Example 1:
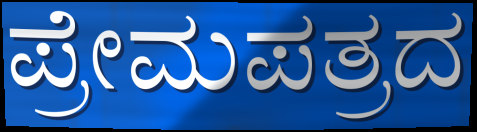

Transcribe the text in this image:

ಪ್ರೇಮಪತ್ರದ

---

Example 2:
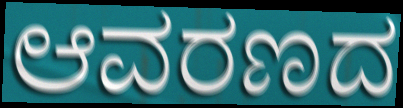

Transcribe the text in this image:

ಆವರಣದ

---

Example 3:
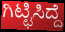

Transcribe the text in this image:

ಗಿಟ್ಟಿಸಿದ್ದೆ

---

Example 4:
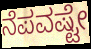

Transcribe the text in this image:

ನೆಪವಷ್ಟೇ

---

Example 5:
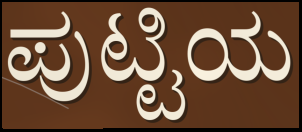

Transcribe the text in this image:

ಪುಟ್ಟಿಯ